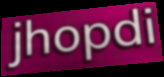
jhopdi